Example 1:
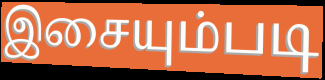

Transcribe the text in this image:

இசையும்படி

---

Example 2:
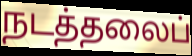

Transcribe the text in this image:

நடத்தலைப்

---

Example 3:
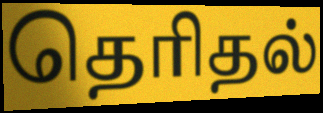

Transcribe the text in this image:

தெரிதல்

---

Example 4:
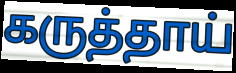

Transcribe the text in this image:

கருத்தாய்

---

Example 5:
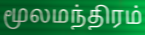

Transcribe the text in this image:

மூலமந்திரம்